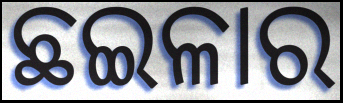
ଛଇଳାର